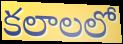
కలాలలో